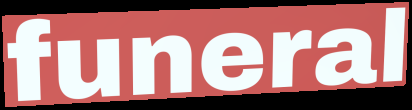
funeral